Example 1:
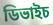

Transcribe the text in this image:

ডিভাইচ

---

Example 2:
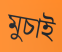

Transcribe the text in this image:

মুচাই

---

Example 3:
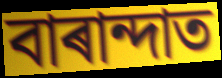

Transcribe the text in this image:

বাৰান্দাত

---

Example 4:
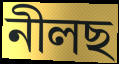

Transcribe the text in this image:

নীলছ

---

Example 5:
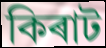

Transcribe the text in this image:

কিৰাট